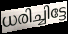
ധരിച്ചിട്ടേ